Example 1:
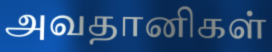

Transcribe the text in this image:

அவதானிகள்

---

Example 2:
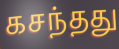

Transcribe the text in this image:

கசந்தது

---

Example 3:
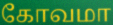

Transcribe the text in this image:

கோவமா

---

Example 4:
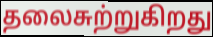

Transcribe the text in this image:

தலைசுற்றுகிறது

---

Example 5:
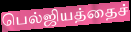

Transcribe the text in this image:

பெல்ஜியத்தைச்